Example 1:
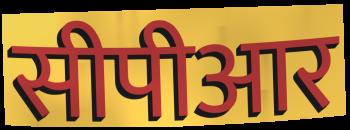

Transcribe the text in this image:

सीपीआर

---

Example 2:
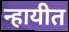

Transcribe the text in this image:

न्हायीत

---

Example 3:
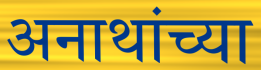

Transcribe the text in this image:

अनाथांच्या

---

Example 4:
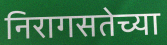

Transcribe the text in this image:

निरागसतेच्या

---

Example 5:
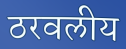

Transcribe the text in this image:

ठरवलीय